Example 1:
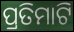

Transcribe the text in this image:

ପ୍ରତିମାଟି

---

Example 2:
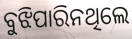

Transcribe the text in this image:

ବୁଝିପାରିନଥିଲେ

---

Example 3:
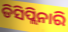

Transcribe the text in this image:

ଡିସିପ୍ଲିନାରି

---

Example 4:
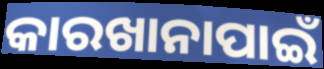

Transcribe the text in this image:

କାରଖାନାପାଇଁ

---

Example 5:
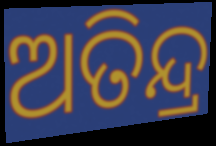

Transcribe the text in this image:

ଅତିନ୍ଦ୍ର